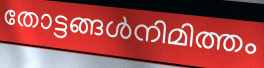
തോട്ടങ്ങൾനിമിത്തം